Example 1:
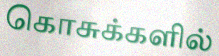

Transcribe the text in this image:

கொசுக்களில்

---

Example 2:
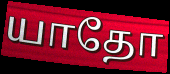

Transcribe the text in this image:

யாதோ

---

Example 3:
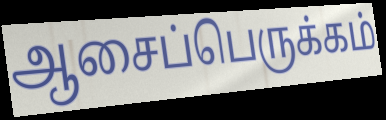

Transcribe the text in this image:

ஆசைப்பெருக்கம்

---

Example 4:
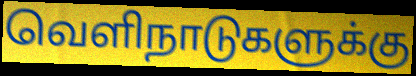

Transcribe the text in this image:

வெளிநாடுகளுக்கு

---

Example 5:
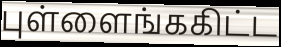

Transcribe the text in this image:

புள்ளைங்ககிட்ட